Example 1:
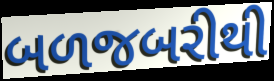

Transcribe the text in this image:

બળજબરીથી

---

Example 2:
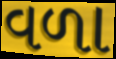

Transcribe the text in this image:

વળા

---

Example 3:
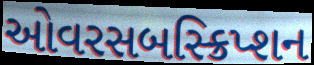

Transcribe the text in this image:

ઓવરસબસ્ક્રિપ્શન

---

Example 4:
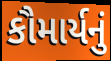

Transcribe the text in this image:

કૌમાર્યનું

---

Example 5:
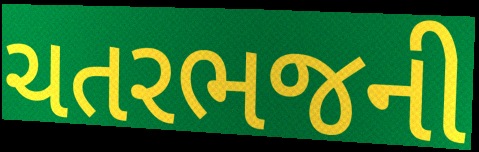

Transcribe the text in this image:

ચતરભજની